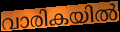
വാരികയിൽ